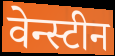
वेन्स्टीन